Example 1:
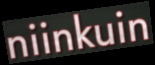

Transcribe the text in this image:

niinkuin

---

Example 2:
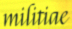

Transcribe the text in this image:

militiae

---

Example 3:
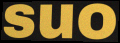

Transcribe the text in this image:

suo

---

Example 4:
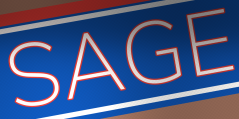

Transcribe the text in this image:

SAGE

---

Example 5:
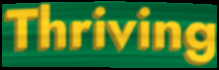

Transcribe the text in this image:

Thriving